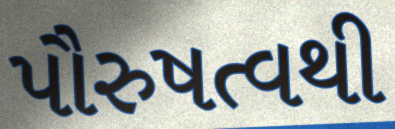
પૌરુષત્વથી